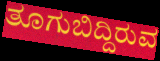
ತೂಗುಬಿದ್ದಿರುವ